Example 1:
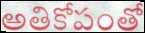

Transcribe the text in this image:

అతికోపంతో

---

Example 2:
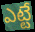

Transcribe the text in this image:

ఎట్టే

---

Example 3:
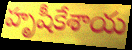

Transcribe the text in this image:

హృషీకేశాయ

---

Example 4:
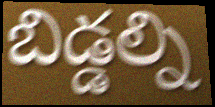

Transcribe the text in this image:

బిడ్డల్ని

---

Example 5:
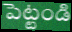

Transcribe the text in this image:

పెట్టండి